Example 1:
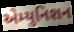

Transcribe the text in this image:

એમ્યુનિશન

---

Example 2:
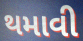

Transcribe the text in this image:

થમાવી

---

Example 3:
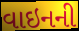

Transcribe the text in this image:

વાઇનની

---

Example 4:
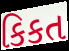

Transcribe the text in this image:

કિકત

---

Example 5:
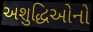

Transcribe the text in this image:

અશુદ્ધિઓનો